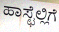
ಹಾಸ್ಟೆಲ್ಲಿಗೆ